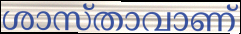
ശാസ്താവാണ്